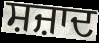
ਸ਼ਜ਼ਾਦ